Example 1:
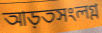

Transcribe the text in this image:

আড়তসংলগ্ন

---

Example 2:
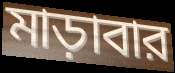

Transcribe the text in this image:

মাড়াবার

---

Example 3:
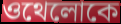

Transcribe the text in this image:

ওথেলোকে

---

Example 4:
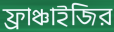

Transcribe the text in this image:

ফ্রাঞ্চাইজির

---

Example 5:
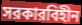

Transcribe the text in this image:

সরকারবিহীন